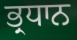
ਭ੍ਰਧਾਨ